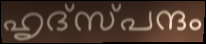
ഹൃദ്സ്പന്ദം